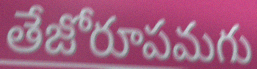
తేజోరూపమగు